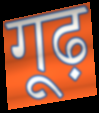
गूढ़